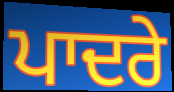
ਪਾਦਰੇ